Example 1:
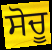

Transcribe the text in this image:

ਸੋਚੂ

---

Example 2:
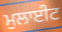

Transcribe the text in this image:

ਮੁਲਾਈਟ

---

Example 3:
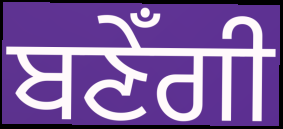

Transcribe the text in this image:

ਬਣੇਁਗੀ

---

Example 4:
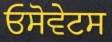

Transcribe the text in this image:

ਓਸੋਵੇਟਸ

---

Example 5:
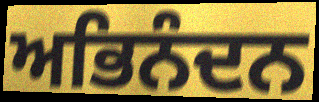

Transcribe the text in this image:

ਅਭਿਨੰਦਨ